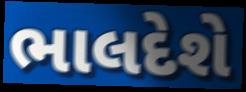
ભાલદેશે